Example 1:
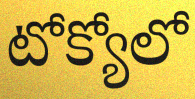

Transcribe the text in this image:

టోక్యోలో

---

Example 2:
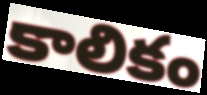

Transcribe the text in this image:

కాలికం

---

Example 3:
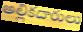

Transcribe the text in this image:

అల్లికదారులు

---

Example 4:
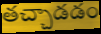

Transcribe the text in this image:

తచ్చాడడం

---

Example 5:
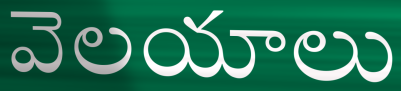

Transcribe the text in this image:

వెలయాలు